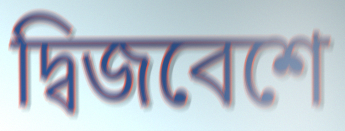
দ্বিজবেশে